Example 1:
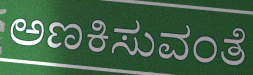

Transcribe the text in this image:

ಅಣಕಿಸುವಂತೆ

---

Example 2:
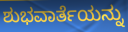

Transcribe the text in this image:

ಶುಭವಾರ್ತೆಯನ್ನು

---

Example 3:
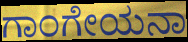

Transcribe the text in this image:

ಗಾಂಗೇಯನಾ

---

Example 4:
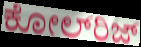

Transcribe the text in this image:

ಕೋಲ್‍ರಿಜ್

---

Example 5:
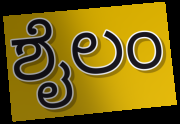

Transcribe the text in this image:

ಶೈಲಂ